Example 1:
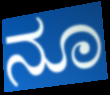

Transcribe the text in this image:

ನೂ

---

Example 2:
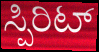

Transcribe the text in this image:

ಸ್ಪಿರಿಟ್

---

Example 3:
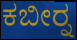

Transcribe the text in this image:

ಕಬೀರ್‍ನ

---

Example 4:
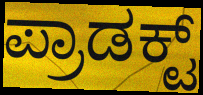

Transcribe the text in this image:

ಪ್ರಾಡಕ್ಟ್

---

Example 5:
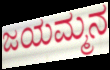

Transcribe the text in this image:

ಜಯಮ್ಮನ